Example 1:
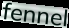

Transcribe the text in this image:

fennel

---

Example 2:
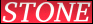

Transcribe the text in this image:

STONE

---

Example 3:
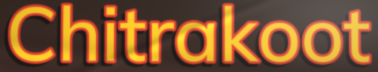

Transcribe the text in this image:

Chitrakoot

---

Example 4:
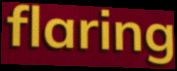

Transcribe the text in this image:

flaring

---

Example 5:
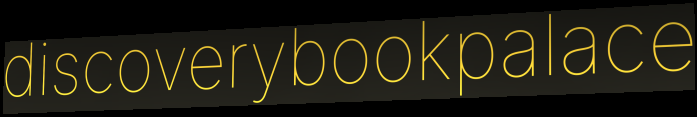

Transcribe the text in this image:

discoverybookpalace